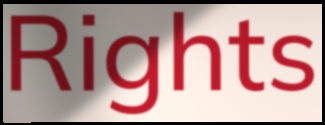
Rights